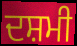
ਦਸ਼ਮੀ